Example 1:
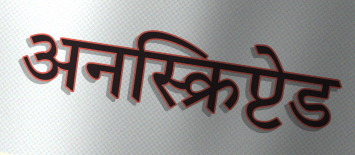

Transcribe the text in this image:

अनस्क्रिप्टेड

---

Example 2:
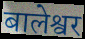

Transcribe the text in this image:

बालेश्वर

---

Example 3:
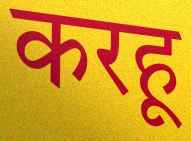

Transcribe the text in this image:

करहू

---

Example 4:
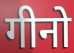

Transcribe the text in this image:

गीनो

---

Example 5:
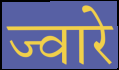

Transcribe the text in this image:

ज्वारे